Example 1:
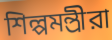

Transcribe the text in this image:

শিল্পমন্ত্রীরা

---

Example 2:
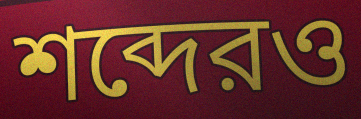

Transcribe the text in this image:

শব্দেরও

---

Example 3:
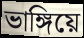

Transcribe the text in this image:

ভাঙ্গিয়ে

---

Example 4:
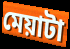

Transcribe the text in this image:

মেয়াটা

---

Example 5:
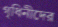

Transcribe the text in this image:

গৃধিনীদের